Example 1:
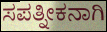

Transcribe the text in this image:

ಸಪತ್ನೀಕನಾಗಿ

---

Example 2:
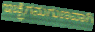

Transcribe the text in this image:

ಇಚ್ಛೆಗನುಗುಣವಾಗಿ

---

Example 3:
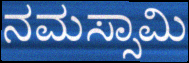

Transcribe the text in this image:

ನಮಸ್ಸಾಮಿ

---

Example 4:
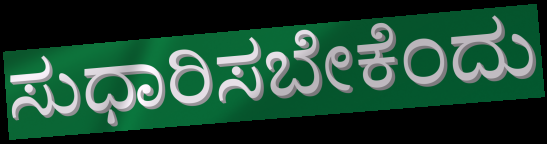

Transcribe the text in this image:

ಸುಧಾರಿಸಬೇಕೆಂದು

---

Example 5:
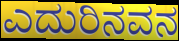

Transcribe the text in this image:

ಎದುರಿನವನ